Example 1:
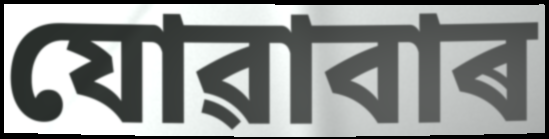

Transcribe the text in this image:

যোৱাবাৰ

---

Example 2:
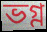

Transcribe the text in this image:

ভগ্ন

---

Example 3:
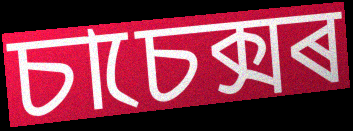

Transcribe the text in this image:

চাচেক্সৰ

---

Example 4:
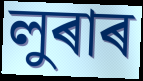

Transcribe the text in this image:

লুৰাৰ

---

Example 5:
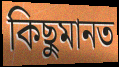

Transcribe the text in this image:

কিছুমানত